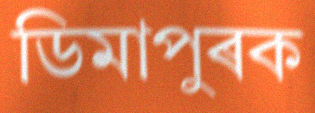
ডিমাপুৰক